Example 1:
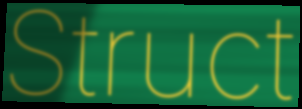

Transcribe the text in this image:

Struct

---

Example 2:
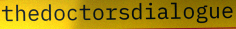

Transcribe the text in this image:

thedoctorsdialogue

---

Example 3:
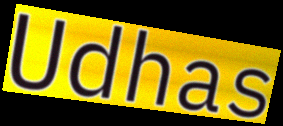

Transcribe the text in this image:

Udhas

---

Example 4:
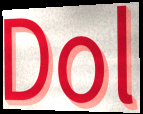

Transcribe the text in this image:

Dol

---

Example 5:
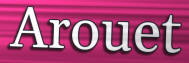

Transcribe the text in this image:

Arouet